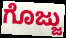
ಗೊಜ್ಜು